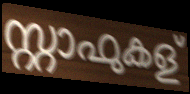
സ്റ്റാഫുകള്